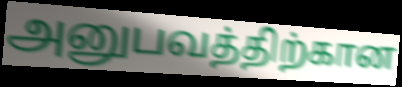
அனுபவத்திற்கான